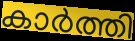
കാർത്തി